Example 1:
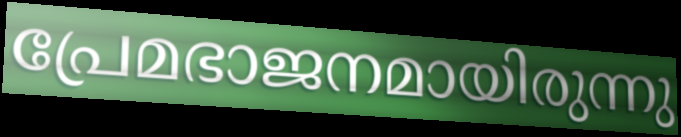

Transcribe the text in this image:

പ്രേമഭാജനമായിരുന്നു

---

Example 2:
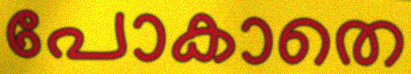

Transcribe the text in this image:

പോകാതെ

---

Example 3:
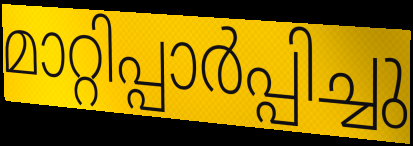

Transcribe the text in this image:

മാറ്റിപ്പാർപ്പിച്ചു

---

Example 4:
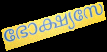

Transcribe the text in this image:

ഭോക്ഷ്യസേ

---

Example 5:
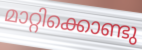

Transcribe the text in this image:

മാറ്റിക്കൊണ്ടു